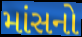
માંસનો